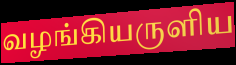
வழங்கியருளிய